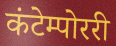
कंटेम्पोररी